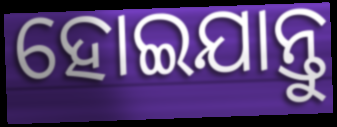
ହୋଇଯାନ୍ତୁ